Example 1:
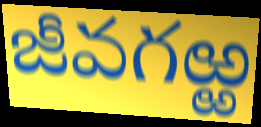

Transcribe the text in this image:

జీవగఱ్ఱ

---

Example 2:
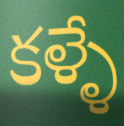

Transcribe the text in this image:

కళ్ళే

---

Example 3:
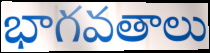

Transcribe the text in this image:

భాగవతాలు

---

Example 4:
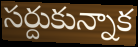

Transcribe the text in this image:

సర్దుకున్నాక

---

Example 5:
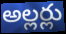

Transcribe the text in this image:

అల్లర్లు